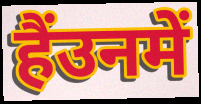
हैंउनमें